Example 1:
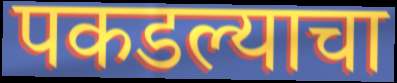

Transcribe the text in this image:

पकडल्याचा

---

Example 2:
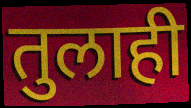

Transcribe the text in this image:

तुलाही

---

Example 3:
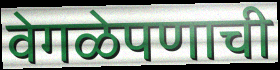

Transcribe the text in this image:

वेगळेपणाची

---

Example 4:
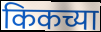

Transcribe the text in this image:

किकच्या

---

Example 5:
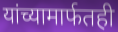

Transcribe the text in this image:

यांच्यामार्फतही